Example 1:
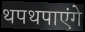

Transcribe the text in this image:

थपथपाएंगे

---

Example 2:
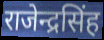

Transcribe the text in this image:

राजेन्द्रसिंह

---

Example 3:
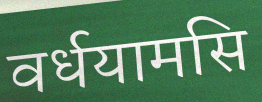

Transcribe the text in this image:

वर्धयामसि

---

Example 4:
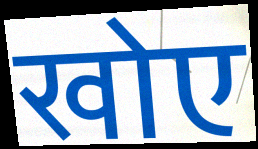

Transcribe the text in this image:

खोए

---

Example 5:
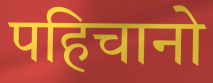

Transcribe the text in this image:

पहिचानो